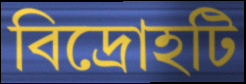
বিদ্রোহটি